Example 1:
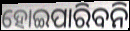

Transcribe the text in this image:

ହୋଇପାରିବନି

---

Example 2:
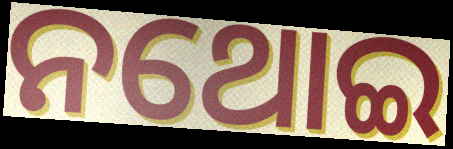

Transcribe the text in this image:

ନଥୋଇ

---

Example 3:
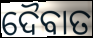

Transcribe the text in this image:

ଦୈବାତ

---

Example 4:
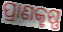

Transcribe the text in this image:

ପ୍ରାଣକୃଷ୍ଣ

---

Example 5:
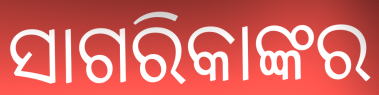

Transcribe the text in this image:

ସାଗରିକାଙ୍କର